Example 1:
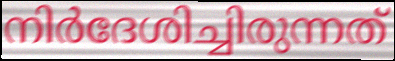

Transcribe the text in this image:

നിർദേശിച്ചിരുന്നത്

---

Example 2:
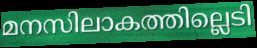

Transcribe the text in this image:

മനസിലാകത്തില്ലെടി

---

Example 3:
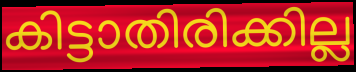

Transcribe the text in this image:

കിട്ടാതിരിക്കില്ല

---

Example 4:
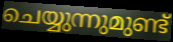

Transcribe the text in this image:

ചെയ്യുന്നുമുണ്ട്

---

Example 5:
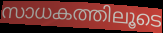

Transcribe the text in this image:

സാധകത്തിലൂടെ